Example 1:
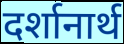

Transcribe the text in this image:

दर्शानार्थ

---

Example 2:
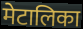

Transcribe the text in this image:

मेटालिका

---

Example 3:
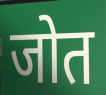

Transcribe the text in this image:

जोत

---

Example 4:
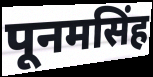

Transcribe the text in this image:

पूनमसिंह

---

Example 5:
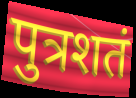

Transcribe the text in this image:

पुत्रशतं